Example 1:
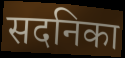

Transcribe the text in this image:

सदनिका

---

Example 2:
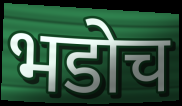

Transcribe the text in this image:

भडोच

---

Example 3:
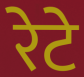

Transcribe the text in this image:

रेटे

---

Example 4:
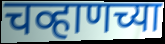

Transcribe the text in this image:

चव्हाणच्या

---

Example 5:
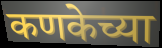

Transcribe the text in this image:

कणकेच्या